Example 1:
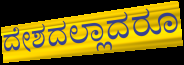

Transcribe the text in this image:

ದೇಶದಲ್ಲಾದರೂ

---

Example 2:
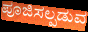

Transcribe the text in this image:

ಪೂಜಿಸಲ್ಪಡುವ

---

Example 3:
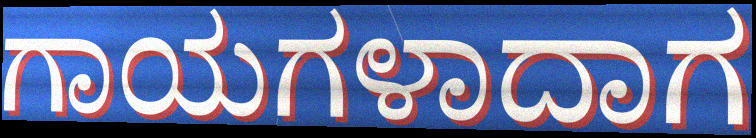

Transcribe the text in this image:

ಗಾಯಗಳಾದಾಗ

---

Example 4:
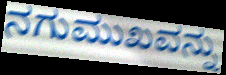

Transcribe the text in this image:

ನಗುಮುಖವನ್ನು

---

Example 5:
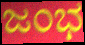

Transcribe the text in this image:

ಜಂಭ